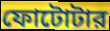
ফোটোটার